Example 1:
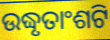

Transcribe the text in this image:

ଉଦ୍ଧୃତାଂଶଟି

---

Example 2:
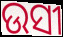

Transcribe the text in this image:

ଉସୀ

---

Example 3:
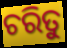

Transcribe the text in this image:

ଚରିତୁ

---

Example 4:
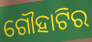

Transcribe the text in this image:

ଗୌହାଟିର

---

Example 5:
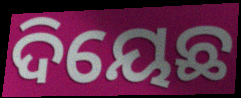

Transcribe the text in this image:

ଦିୟେଛ